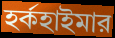
হর্কহাইমার